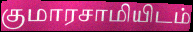
குமாரசாமியிடம்